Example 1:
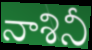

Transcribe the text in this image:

నాశినీ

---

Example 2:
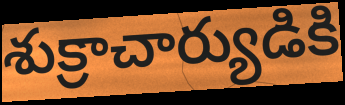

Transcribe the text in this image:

శుక్రాచార్యుడికి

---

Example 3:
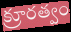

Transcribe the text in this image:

క్రూరత్వం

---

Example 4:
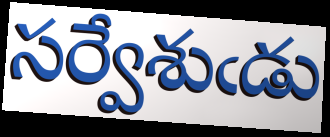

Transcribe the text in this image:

సర్వేశుఁడు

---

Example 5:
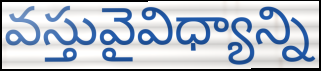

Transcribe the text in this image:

వస్తువైవిధ్యాన్ని